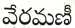
వేరమణీ